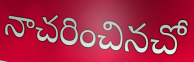
నాచరించినచో